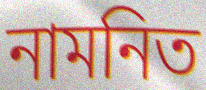
নামনিত